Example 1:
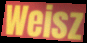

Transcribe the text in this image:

Weisz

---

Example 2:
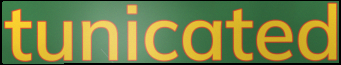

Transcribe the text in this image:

tunicated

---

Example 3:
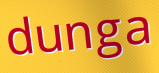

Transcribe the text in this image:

dunga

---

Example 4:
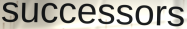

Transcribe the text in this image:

successors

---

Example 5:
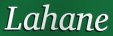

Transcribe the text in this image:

Lahane